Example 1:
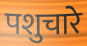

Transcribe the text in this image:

पशुचारे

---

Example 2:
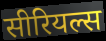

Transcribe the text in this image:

सीरियल्स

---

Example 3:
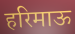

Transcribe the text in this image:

हरिमाऊ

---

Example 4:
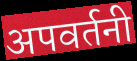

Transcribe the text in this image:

अपवर्तनी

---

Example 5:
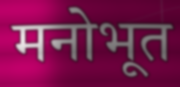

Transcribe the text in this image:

मनोभूत